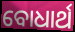
ବୋଧାର୍ଥ